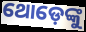
ଥୋଡ଼େଙ୍କୁ